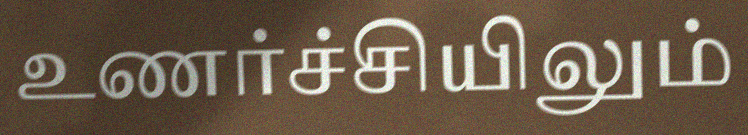
உணர்ச்சியிலும்